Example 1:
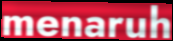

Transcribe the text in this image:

menaruh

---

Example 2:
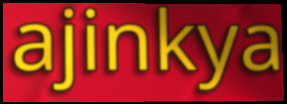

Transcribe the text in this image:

ajinkya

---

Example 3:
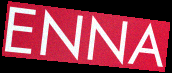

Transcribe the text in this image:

ENNA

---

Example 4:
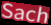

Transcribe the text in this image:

Sach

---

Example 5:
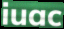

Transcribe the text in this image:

iuac